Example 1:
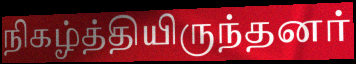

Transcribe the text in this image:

நிகழ்த்தியிருந்தனர்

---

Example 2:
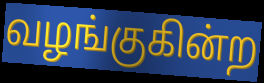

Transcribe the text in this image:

வழங்குகின்ற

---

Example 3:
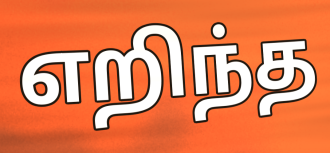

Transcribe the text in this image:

எறிந்த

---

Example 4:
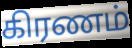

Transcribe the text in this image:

கிரணம்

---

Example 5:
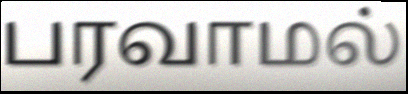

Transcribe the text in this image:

பரவாமல்